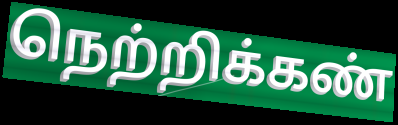
நெற்றிக்கண்